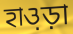
হাও়ড়া